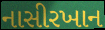
નાસીરખાન